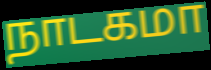
நாடகமா